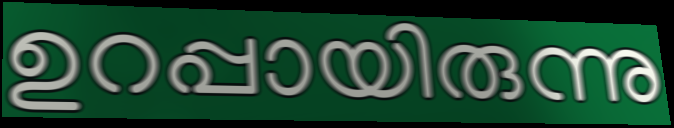
ഉറപ്പായിരുന്നു